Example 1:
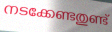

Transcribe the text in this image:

നടക്കേണ്ടതുണ്ട്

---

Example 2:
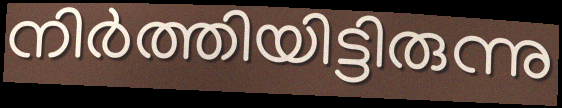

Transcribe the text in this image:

നിർത്തിയിട്ടിരുന്നു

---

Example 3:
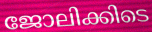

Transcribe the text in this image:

ജോലിക്കിടെ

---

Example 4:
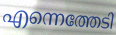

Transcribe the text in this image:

എന്നെത്തേടി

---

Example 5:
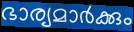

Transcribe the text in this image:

ഭാര്യമാർക്കും